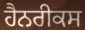
ਹੈਨਰੀਕਸ